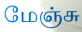
மேஞ்சு